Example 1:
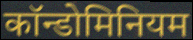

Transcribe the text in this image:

कॉन्डोमिनियम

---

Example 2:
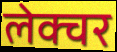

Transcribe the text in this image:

लेक्चर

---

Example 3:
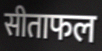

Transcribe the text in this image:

सीताफल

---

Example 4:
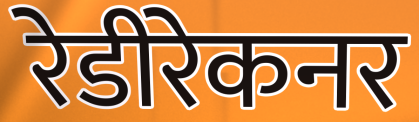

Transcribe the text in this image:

रेडीरेकनर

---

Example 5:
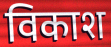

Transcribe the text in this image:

विकाश